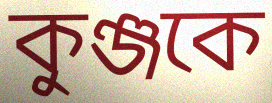
কুঞ্জকে